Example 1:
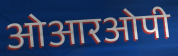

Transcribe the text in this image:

ओआरओपी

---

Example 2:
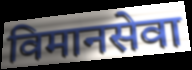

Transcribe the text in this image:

विमानसेवा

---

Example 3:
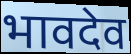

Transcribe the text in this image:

भावदेव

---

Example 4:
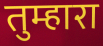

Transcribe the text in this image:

तुम्हारा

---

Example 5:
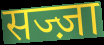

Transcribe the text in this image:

सज्ज़ा